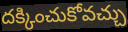
దక్కించుకోవచ్చు